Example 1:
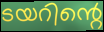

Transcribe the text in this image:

ടയറിന്റെ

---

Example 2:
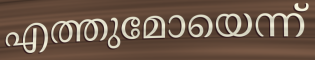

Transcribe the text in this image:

എത്തുമോയെന്ന്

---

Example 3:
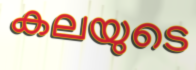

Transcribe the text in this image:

കലയുടെ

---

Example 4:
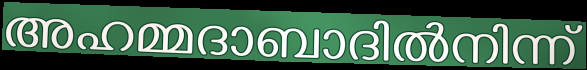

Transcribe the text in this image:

അഹമ്മദാബാദിൽനിന്ന്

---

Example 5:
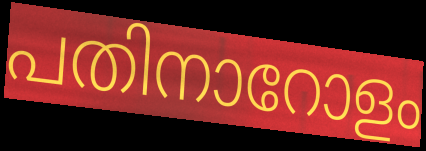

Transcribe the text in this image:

പതിനാറോളം